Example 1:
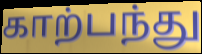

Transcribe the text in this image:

காற்பந்து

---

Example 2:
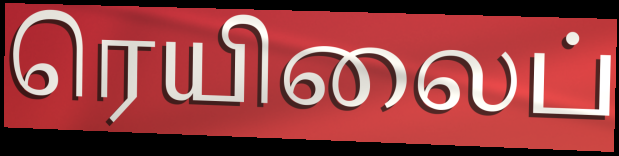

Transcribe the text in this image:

ரெயிலைப்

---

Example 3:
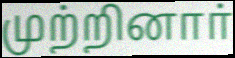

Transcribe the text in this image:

முற்றினார்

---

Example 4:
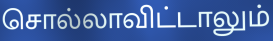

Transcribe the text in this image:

சொல்லாவிட்டாலும்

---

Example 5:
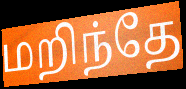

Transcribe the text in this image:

மறிந்தே